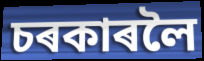
চৰকাৰলৈ